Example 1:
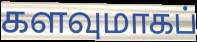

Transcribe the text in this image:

களவுமாகப்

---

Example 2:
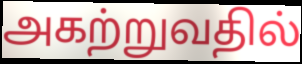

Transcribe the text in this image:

அகற்றுவதில்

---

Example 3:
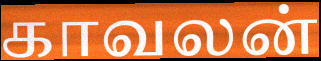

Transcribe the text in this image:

காவலன்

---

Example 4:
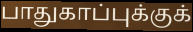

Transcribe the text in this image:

பாதுகாப்புக்குக்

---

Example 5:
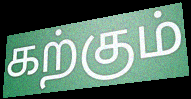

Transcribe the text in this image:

கற்கும்